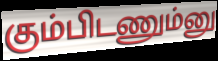
கும்பிடணும்னு